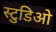
स्टुडिओ